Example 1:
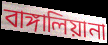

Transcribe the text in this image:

বাঙ্গালিয়ানা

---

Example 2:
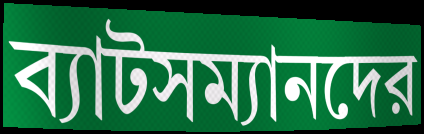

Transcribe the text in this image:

ব্যাটসম্যানদের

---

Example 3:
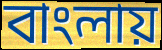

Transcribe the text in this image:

বাংলায়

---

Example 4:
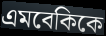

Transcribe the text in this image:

এমবেকিকে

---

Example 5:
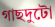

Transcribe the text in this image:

গাছদুটো